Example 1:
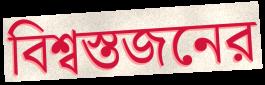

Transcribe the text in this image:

বিশ্বস্তজনের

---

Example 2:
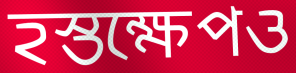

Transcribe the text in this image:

হস্তক্ষেপও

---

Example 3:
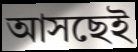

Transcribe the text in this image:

আসছেই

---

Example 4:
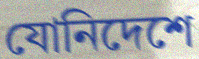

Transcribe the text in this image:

যোনিদেশে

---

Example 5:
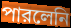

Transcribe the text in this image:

পারলেনি